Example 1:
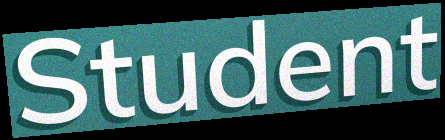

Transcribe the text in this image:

Student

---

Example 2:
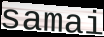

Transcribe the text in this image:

samai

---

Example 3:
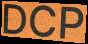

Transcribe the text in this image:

DCP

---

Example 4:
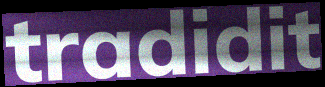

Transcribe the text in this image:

tradidit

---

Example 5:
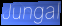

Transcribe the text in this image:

Jungal